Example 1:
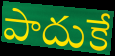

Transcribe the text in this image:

పాదుకే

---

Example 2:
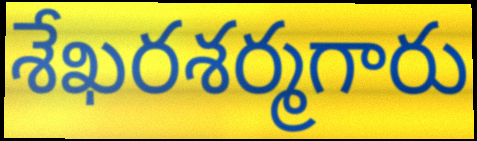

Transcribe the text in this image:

శేఖరశర్మగారు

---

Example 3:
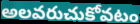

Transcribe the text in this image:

అలవరుచుకోవటం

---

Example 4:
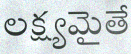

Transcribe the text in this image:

లక్ష్యమైతే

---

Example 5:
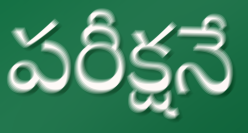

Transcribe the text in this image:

పరీక్షనే